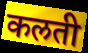
कलती